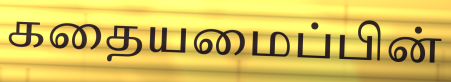
கதையமைப்பின்